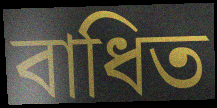
বাধিত